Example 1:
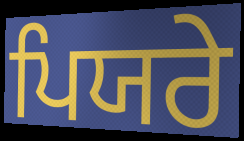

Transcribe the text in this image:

ਪਿਯਰੇ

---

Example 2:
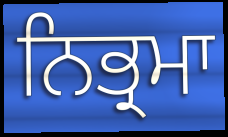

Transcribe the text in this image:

ਨਿਭ੍ਰਮਾ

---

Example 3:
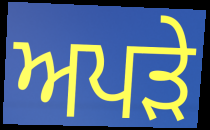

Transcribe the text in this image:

ਅਪੜੇ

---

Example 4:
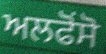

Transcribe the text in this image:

ਅਲਫੋਂਸੋ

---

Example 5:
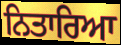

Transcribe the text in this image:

ਨਿਤਾਰਿਆ